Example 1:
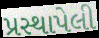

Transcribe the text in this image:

પ્રસ્થાપેલી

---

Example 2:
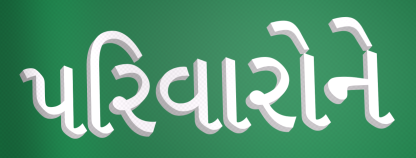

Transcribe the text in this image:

પરિવારોને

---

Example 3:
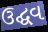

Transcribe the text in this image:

ઉદ્ઘવ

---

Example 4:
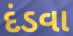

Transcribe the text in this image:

દંડવા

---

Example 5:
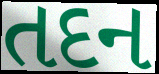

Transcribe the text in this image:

તદન